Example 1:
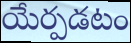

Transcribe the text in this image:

యేర్పడటం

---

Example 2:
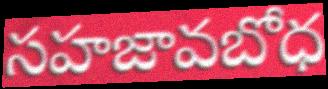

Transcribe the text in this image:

సహజావబోధ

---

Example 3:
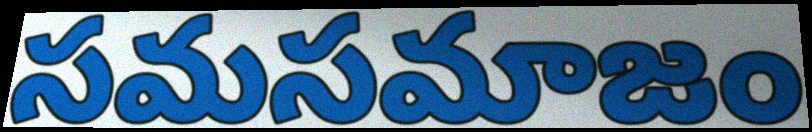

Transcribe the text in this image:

సమసమాజం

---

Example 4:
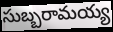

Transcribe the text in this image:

సుబ్బరామయ్య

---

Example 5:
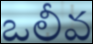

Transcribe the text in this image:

ఒలీవ